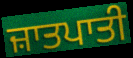
ਜ਼ਾਤਪਾਤੀ